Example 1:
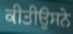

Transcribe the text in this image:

ਕੀਤੀਉਸਨੇ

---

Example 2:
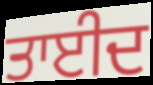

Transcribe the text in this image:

ਤਾਈਦ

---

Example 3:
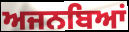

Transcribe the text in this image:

ਅਜਨਬਿਆਂ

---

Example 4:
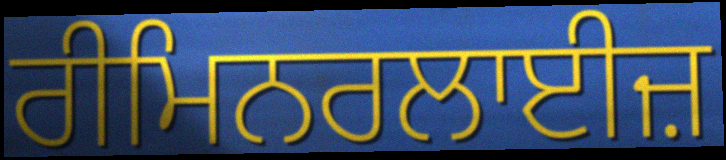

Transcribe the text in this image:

ਰੀਮਿਨਰਲਾਈਜ਼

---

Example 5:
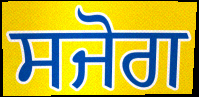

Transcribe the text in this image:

ਸਜੋਗ